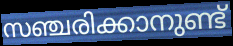
സഞ്ചരിക്കാനുണ്ട്